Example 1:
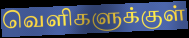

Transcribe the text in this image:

வெளிகளுக்குள்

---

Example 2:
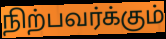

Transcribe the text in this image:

நிற்பவர்க்கும்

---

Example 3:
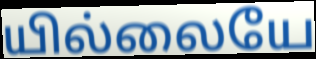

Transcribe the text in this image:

யில்லையே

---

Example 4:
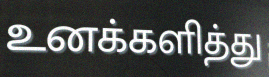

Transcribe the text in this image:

உனக்களித்து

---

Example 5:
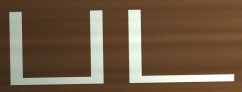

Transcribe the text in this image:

பட